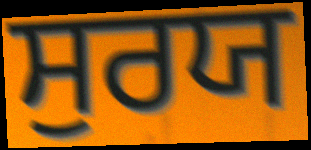
ਸੁਰਯ